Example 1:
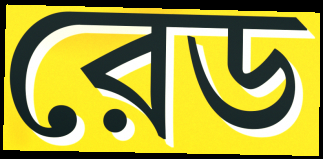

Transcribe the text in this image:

রেড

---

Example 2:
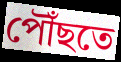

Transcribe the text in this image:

পৌঁছতে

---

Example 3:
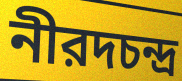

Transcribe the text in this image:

নীরদচন্দ্র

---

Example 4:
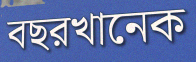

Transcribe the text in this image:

বছরখানেক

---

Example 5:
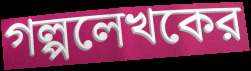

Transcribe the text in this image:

গল্পলেখকের